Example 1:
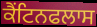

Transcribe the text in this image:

ਕੈਂਟਿਨਫਲਾਸ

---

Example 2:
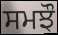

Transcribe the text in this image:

ਸਮਝੌ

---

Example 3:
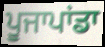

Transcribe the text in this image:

ਪੂਜਾਪਾਂਡਾ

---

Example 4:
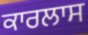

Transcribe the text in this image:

ਕਾਰਲਾਸ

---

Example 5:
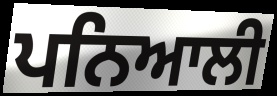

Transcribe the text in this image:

ਪਨਿਆਲੀ